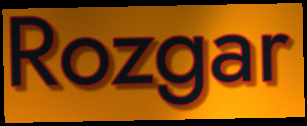
Rozgar